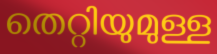
തെറ്റിയുമുള്ള